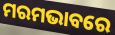
ମରମଭାବରେ